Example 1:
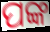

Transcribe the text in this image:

ପଙ୍କ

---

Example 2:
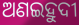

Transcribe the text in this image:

ଅଣଇହୁଦୀ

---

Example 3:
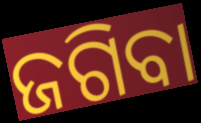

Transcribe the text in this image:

ଜଗିବା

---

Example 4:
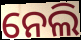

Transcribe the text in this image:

ନେଲି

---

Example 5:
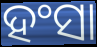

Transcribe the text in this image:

ହଂସା